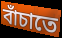
বাঁচাতে